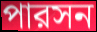
পারসন